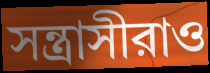
সন্ত্রাসীরাও